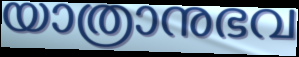
യാത്രാനുഭവ